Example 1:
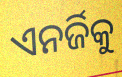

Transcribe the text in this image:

ଏନର୍ଜିକୁ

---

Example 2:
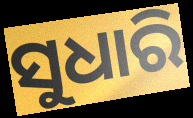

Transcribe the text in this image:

ସୁଧାରି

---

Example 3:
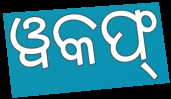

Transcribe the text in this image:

ୱକଫ୍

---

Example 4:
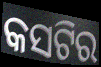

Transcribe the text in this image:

କସଟିର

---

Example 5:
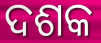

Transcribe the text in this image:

ଦଶକ